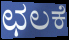
ಛಲಕೆ